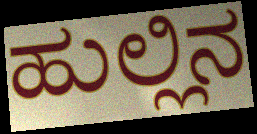
ಹುಲ್ಲಿನ